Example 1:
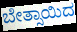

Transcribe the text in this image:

ಬೇತ್ಸಾಯಿದ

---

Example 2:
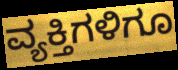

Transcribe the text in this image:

ವ್ಯಕ್ತಿಗಳಿಗೂ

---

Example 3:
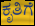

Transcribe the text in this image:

ಕೃತಿಗೆ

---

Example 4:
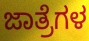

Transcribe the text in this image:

ಜಾತ್ರೆಗಳ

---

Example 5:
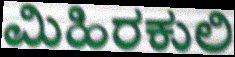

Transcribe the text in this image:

ಮಿಹಿರಕುಲಿ